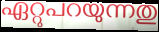
ഏറ്റുപറയുന്നതു